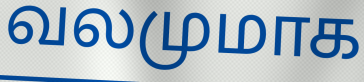
வலமுமாக